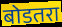
बोडतरा